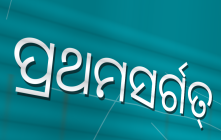
ପ୍ରଥମସର୍ଗତ୍